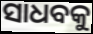
ସାଧବକୁ